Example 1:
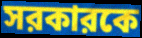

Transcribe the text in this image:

সরকারকে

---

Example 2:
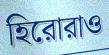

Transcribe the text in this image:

হিরোরাও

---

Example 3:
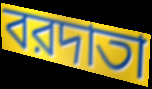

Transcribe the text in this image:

বরদাতা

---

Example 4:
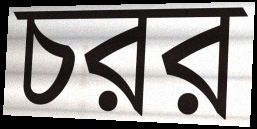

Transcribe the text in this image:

চরর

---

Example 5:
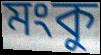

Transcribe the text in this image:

মংকু